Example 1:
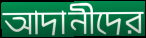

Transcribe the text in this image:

আদানীদের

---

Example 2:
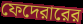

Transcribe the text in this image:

ফেদেরারের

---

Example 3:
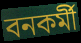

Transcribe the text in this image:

বনকর্মী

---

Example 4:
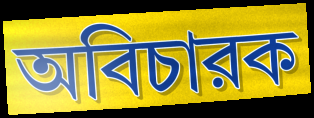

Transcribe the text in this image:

অবিচারক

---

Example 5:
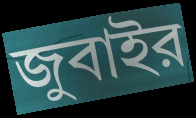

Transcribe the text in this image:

জুবাইর